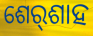
ଶେର୍‌ଶାହ